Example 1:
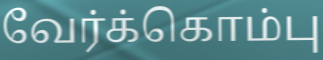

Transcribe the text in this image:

வேர்க்கொம்பு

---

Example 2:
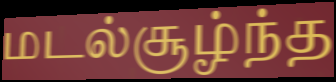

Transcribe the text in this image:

மடல்சூழ்ந்த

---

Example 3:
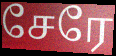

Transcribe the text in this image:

சேரே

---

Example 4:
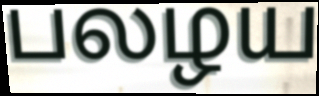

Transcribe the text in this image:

பலழய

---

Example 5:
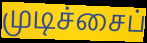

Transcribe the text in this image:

முடிச்சைப்